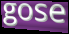
gose